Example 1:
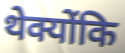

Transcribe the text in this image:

थेक्योंकि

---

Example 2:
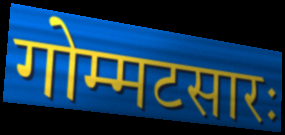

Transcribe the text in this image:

गोम्मटसारः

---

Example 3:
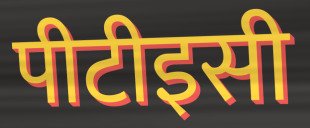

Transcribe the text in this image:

पीटीइसी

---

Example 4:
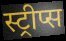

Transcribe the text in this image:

स्ट्रीप्स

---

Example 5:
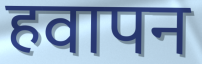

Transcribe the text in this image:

हवापन